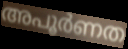
അപൂർണത